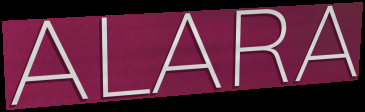
ALARA